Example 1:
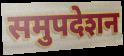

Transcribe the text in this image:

समुपदेशन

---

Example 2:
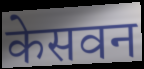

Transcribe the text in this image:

केसवन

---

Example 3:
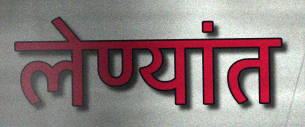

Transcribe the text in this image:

लेण्यांत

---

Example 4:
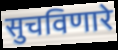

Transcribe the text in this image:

सुचविणारे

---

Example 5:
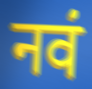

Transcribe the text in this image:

नवं